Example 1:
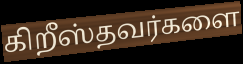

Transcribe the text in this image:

கிறீஸ்தவர்களை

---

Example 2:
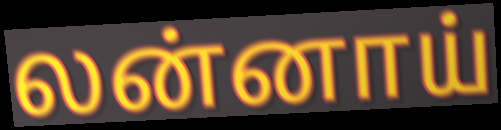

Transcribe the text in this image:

லன்னாய்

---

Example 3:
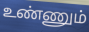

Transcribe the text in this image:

உண்ணும்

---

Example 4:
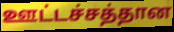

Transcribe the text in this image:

ஊட்டச்சத்தான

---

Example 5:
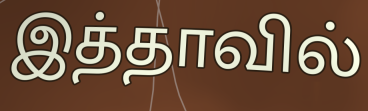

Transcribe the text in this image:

இத்தாவில்